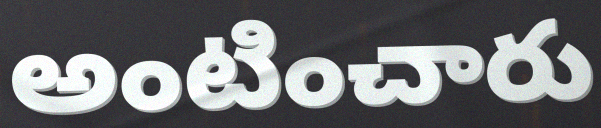
అంటించారు